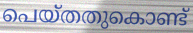
പെയ്തതുകൊണ്ട്